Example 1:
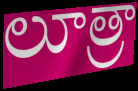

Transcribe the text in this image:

లూత్రా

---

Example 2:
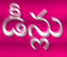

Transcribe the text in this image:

డీన్లు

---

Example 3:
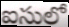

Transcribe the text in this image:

ఐసులో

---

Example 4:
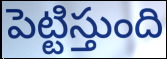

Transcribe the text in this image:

పెట్టిస్తుంది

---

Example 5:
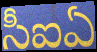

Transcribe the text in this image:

సీఐఏ